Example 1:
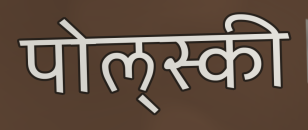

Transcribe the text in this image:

पोल्स्की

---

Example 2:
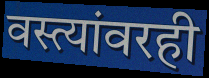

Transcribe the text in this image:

वस्त्यांवरही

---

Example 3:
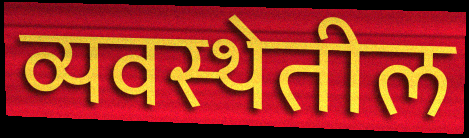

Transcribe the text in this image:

व्यवस्थेतील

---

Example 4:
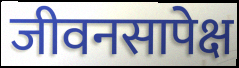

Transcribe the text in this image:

जीवनसापेक्ष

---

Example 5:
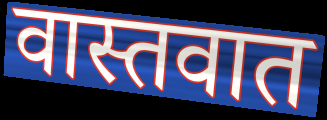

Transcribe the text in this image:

वास्तवात